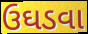
ઉઘડવા